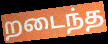
றடைந்த